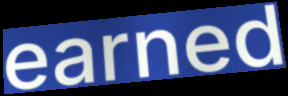
earned